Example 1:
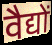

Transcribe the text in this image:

वैद्यों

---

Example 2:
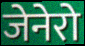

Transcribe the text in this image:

जेनेरो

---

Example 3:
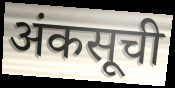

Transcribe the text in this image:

अंकसूची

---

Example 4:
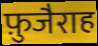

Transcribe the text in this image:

फ़ुजैराह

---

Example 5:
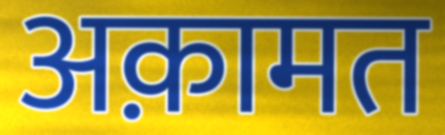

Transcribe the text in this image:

अक़ामत